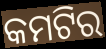
କମଟିର